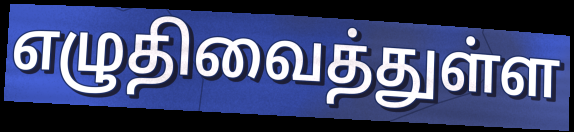
எழுதிவைத்துள்ள